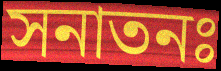
সনাতনঃ